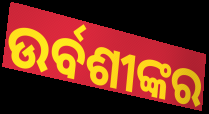
ଉର୍ବଶୀଙ୍କର